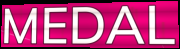
MEDAL